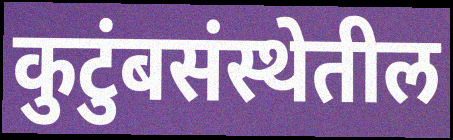
कुटुंबसंस्थेतील